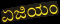
ಏಜಿಯಂ